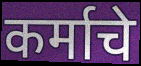
कर्माचे